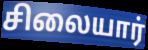
சிலையார்